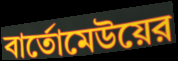
বার্তোমেউয়ের